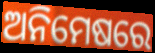
ଅନିମେଷରେ